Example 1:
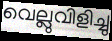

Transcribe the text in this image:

വെല്ലുവിളിച്ചു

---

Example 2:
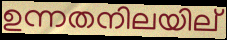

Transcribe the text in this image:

ഉന്നതനിലയില്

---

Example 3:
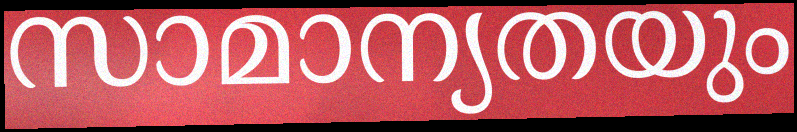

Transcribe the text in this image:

സാമാന്യതയും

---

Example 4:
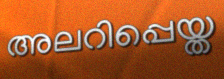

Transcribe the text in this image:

അലറിപ്പെയ്ത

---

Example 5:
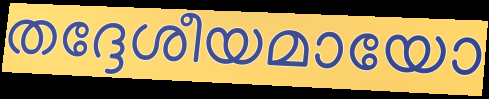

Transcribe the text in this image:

തദ്ദേശീയമായോ